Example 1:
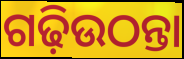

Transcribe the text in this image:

ଗଢ଼ିଉଠନ୍ତା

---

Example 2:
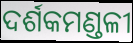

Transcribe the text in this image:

ଦର୍ଶକମଣ୍ଡଳୀ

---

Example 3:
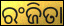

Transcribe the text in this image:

ରଂଜିତା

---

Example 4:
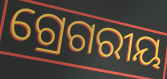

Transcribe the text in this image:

ଗ୍ରେଗରୀୟ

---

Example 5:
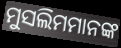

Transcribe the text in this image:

ମୁସଲିମମାନଙ୍କ